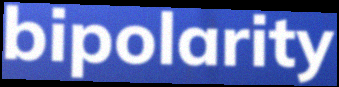
bipolarity